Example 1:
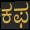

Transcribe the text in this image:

ಕಫ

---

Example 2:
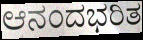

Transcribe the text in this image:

ಆನಂದಭರಿತ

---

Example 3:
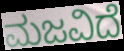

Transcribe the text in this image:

ಮಜವಿದೆ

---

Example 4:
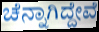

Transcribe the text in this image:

ಚೆನ್ನಾಗಿದ್ದೇವೆ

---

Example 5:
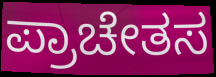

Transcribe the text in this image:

ಪ್ರಾಚೇತಸ